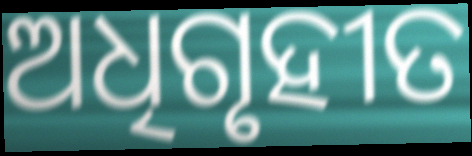
ଅଧିଗୃହୀତ